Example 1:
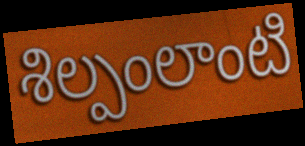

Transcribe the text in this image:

శిల్పంలాంటి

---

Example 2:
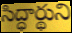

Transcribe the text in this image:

సిద్ధార్థుని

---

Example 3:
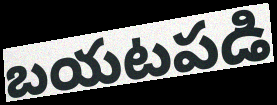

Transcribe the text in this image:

బయటపడి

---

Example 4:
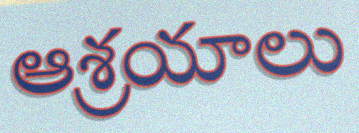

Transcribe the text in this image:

ఆశ్రయాలు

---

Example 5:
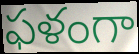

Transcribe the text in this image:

ఫళంగా